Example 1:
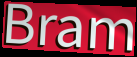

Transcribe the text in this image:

Bram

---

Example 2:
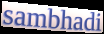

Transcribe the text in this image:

sambhadi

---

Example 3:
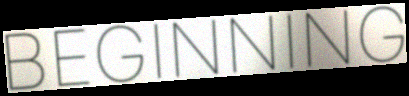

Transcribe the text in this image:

BEGINNING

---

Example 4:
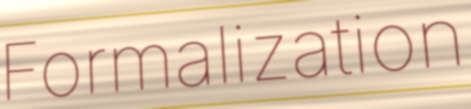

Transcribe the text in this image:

Formalization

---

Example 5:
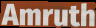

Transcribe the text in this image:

Amruth